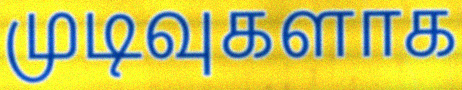
முடிவுகளாக